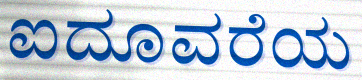
ಐದೂವರೆಯ